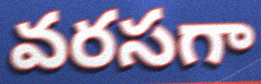
వరసగా